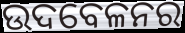
ଉଦବେଳନର